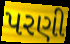
પરણી